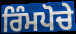
ਰਿੰਮਪੋਚੇ